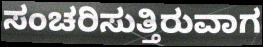
ಸಂಚರಿಸುತ್ತಿರುವಾಗ